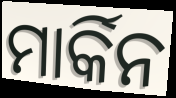
ମାର୍କିନ